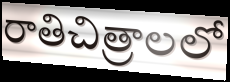
రాతిచిత్రాలలో